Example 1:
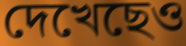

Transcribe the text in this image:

দেখেছেও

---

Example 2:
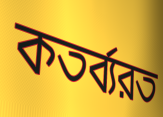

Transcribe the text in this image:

কতর্ব্যরত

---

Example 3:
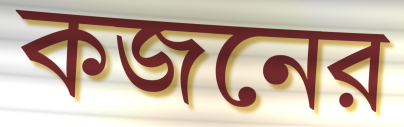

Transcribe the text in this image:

কজনের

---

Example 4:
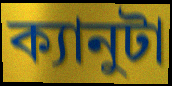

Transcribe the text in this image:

ক্যানুটা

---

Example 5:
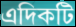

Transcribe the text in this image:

এদিকটি